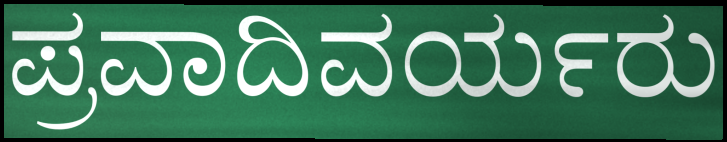
ಪ್ರವಾದಿವರ್ಯರು